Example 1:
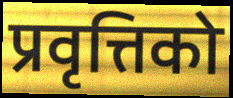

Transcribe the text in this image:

प्रवृत्तिको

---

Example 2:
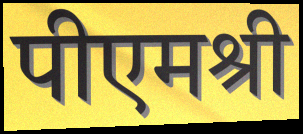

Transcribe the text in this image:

पीएमश्री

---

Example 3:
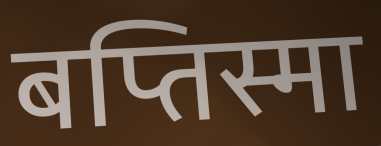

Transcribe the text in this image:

बप्तिस्मा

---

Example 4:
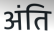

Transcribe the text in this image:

अंति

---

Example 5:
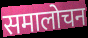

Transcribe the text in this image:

समालोचन